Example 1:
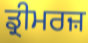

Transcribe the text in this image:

ਡ੍ਰੀਮਰਜ਼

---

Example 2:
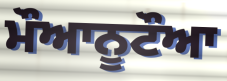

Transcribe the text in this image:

ਮੌਆਨੂਟੌਆ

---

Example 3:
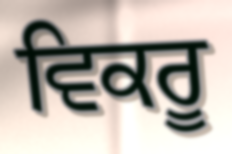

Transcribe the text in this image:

ਵਿਕਰੂ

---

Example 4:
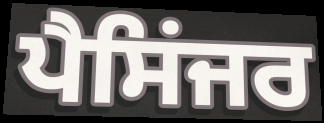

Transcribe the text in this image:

ਪੈਸਿਂਜਰ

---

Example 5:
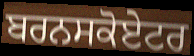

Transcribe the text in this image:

ਬਰਨਸਕੋਏਟਰ